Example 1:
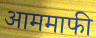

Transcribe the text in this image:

आममाफी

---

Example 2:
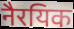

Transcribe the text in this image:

नैरयिक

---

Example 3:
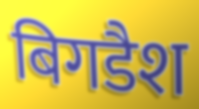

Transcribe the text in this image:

बिगडैश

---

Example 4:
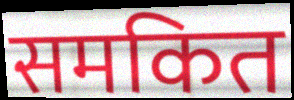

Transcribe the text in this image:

समकित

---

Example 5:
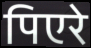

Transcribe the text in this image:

पिएरे